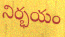
నిర్భయం